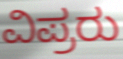
ವಿಪ್ರರು